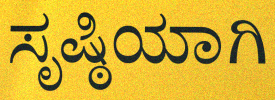
ಸೃಷ್ಠಿಯಾಗಿ